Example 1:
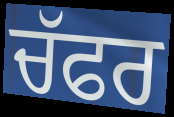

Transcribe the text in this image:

ਚੱਫਰ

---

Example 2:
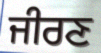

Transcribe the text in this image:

ਜੀਰਣ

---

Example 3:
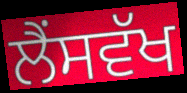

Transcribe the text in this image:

ਲੈਂਸਵੱਖ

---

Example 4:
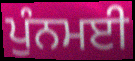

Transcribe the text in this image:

ਪੁੰਨਮਈ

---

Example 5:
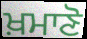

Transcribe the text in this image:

ਖ਼ਮਾਣੋ